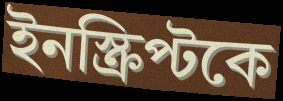
ইনস্ক্রিপ্টকে